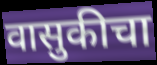
वासुकीचा